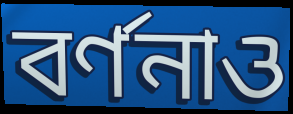
বর্ণনাও